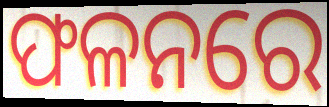
ଫଳନରେ